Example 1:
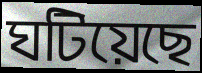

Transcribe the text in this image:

ঘটিয়েছে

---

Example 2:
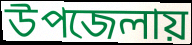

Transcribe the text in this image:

উপজেলায়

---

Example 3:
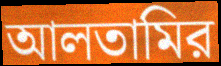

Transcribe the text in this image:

আলতামির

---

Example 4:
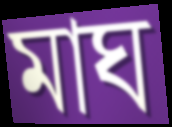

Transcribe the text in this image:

মাঘ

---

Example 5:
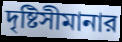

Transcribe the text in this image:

দৃষ্টিসীমানার